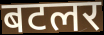
बटलर